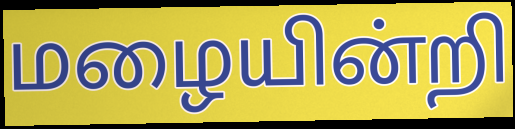
மழையின்றி